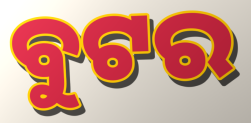
ବୁଟର